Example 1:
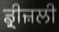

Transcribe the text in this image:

ਡ੍ਰੀਜ਼ਲੀ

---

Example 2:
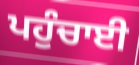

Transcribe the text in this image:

ਪਹੁੰਚਾਈ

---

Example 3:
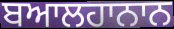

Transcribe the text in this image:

ਬਆਲਹਾਨਾਨ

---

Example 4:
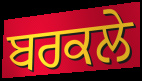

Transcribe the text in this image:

ਬਰਕਲੇ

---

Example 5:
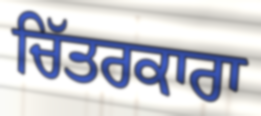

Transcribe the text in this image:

ਚਿੱਤਰਕਾਰਾ